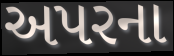
અપરના